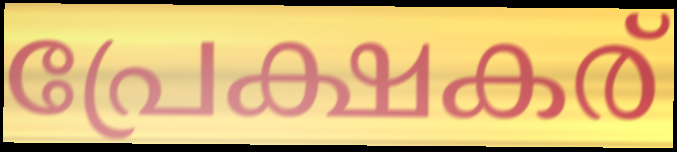
പ്രേക്ഷകര്